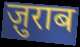
ज़ुराब